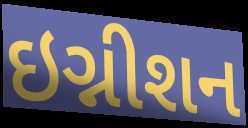
ઇગ્નીશન